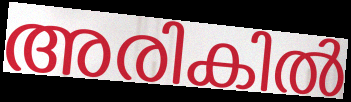
അരികിൽ